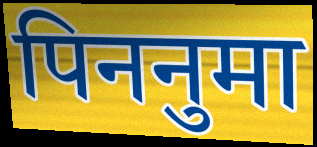
पिननुमा